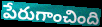
పేరుగాంచింది